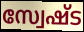
സ്വേഷ്ട